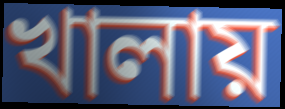
খালায়